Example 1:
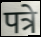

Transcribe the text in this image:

पत्रे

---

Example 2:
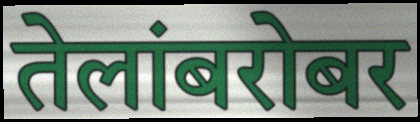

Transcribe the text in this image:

तेलांबरोबर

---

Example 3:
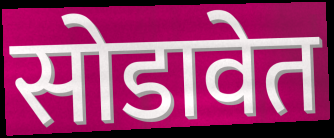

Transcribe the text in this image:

सोडावेत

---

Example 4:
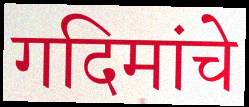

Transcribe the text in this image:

गदिमांचे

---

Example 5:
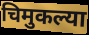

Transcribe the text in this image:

चिमुकल्या